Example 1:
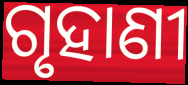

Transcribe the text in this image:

ଗୃହାଣୀ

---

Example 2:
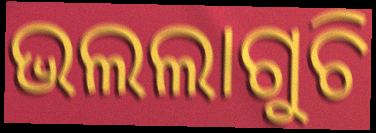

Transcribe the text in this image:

ଭଲଲାଗୁଚି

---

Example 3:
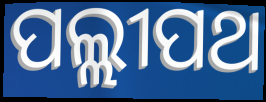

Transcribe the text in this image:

ପଲ୍ଲୀପଥ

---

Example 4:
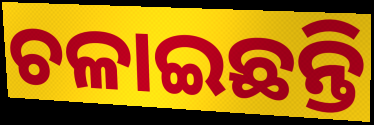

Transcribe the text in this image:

ଚଳାଇଛନ୍ତି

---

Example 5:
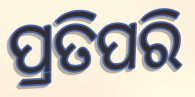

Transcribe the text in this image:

ପ୍ରତିପରି